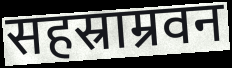
सहस्राम्रवन